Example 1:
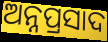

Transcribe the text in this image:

ଅନ୍ନପ୍ରସାଦ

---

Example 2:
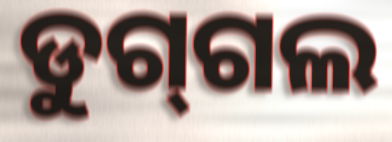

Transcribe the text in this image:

ଡୁଗ୍‌ଗଲ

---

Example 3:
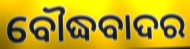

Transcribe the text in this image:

ବୌଦ୍ଧବାଦର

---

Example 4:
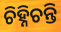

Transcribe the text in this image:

ଚିହ୍ନିଚନ୍ତି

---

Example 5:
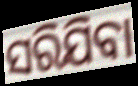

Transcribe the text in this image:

ସରିଯିବା